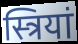
स्त्रियां